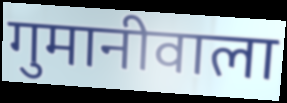
गुमानीवाला